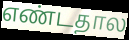
எண்டதால